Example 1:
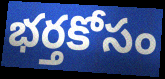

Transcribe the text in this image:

భర్తకోసం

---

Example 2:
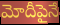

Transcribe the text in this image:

మోదీపైనే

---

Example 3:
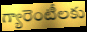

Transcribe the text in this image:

గ్యారెంటీలకు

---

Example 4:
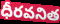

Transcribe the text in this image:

ధీరవనిత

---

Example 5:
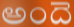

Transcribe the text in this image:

అందె